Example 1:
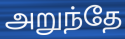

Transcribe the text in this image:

அறுந்தே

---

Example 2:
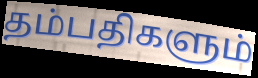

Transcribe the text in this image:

தம்பதிகளும்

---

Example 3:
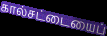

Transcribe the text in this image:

கால்சட்டையைப்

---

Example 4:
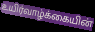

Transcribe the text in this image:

உயிர்வாழ்க்கையின்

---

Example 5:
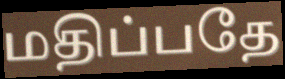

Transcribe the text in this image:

மதிப்பதே